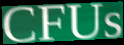
CFUs